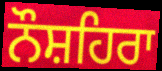
ਨੌਸ਼ਹਿਰਾ